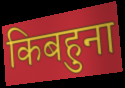
किबहुना